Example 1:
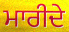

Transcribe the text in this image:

ਮਾਰੀਦੇ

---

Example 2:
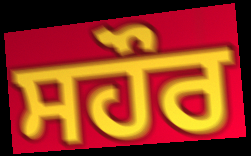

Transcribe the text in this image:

ਸਹੌਰ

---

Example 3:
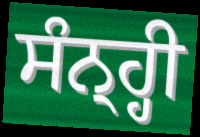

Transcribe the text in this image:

ਸੰਨ੍ਹ੍ਹੀ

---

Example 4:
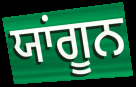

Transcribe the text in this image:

ਯਾਂਗੂਨ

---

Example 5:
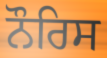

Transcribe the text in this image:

ਨੌਰਿਸ